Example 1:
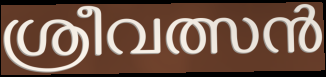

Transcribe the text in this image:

ശ്രീവത്സൻ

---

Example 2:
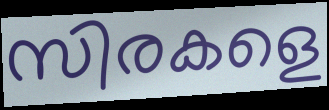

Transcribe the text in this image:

സിരകളെ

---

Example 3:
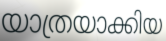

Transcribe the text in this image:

യാത്രയാക്കിയ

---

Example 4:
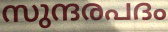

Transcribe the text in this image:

സുന്ദരപദം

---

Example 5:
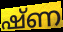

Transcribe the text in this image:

ഷ്ണ